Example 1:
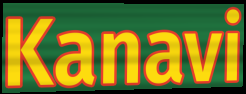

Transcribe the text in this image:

Kanavi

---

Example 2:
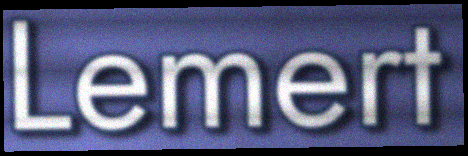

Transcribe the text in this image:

Lemert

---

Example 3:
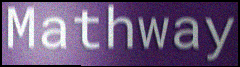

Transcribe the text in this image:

Mathway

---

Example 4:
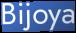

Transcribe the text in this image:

Bijoya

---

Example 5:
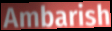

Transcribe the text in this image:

Ambarish